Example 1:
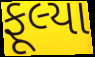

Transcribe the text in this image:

ફૂલ્યા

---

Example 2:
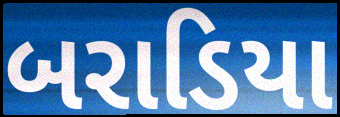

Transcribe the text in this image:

બરાડિયા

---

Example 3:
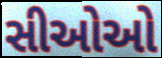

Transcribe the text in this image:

સીઓઓ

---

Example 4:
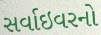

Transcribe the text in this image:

સર્વાઇવરનો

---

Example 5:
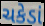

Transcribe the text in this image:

ચકેડાં